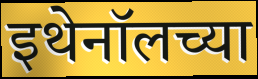
इथेनॉलच्या